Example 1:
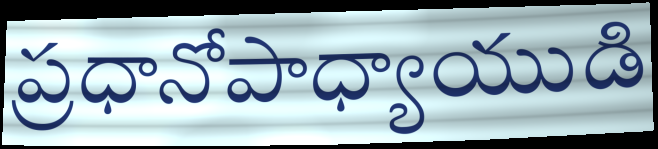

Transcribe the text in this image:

ప్రధానోపాధ్యాయుడి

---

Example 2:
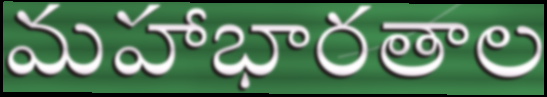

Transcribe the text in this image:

మహాభారతాల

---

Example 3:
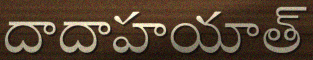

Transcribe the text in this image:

దాదాహయాత్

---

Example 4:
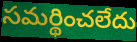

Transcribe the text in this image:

సమర్థించలేదు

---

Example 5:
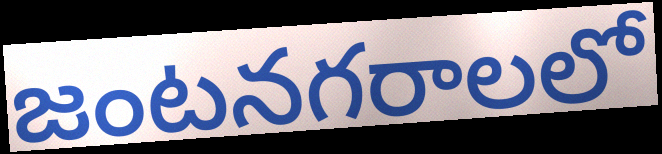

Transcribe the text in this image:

జంటనగరాలలో